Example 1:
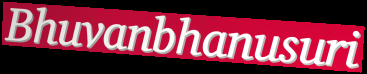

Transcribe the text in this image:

Bhuvanbhanusuri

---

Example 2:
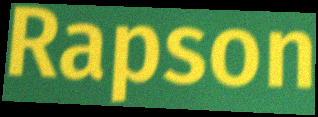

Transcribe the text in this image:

Rapson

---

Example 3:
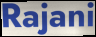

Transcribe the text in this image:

Rajani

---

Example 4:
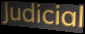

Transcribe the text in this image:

Judicial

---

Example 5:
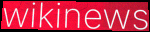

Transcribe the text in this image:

wikinews